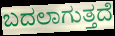
ಬದಲಾಗುತ್ತದೆ